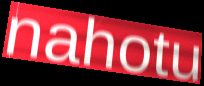
nahotu